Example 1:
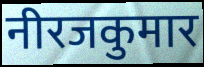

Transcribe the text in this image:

नीरजकुमार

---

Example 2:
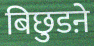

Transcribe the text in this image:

बिछुडऩे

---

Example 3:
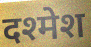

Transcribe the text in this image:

दश्मेश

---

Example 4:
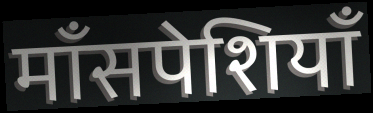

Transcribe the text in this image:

माँसपेशियाँ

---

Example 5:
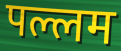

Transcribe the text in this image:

पल्लम